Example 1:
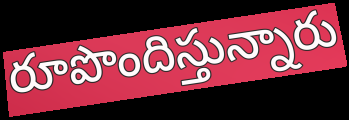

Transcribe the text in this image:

రూపొందిస్తున్నారు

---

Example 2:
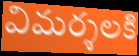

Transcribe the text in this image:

విమర్శలకి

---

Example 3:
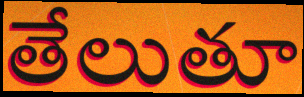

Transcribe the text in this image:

తేలుతూ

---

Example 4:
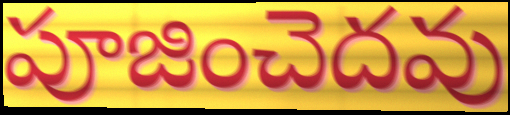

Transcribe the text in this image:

పూజించెదవు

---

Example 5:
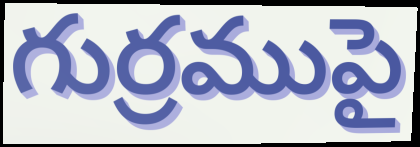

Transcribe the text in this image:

గుర్రముపై